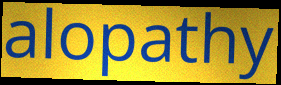
alopathy